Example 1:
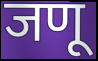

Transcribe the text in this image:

जणू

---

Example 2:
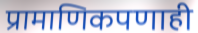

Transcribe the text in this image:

प्रामाणिकपणाही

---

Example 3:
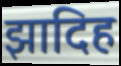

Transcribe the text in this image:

झादिह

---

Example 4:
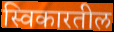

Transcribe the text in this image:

स्विकारतील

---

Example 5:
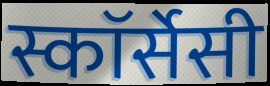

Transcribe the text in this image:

स्कॉर्सेसी